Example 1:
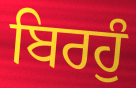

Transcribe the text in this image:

ਬਿਰਹੁੰ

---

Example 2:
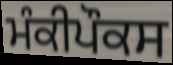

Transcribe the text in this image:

ਮੰਕੀਪੌਕਸ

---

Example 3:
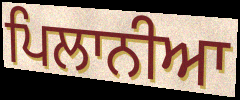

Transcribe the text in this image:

ਪਿਲਾਨੀਆ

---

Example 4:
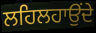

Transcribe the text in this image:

ਲਹਿਲਹਾਉਂਦੇ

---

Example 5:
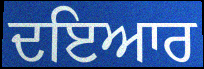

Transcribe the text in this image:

ਦਇਆਰ